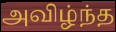
அவிழ்ந்த